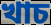
খাচ